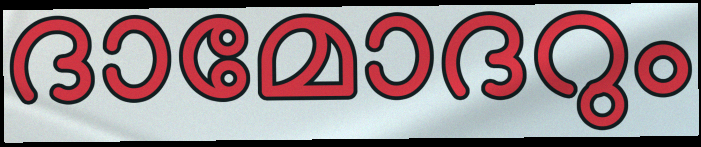
ദാമോദറും